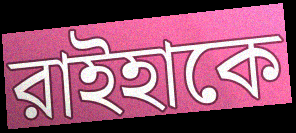
রাইহাকে